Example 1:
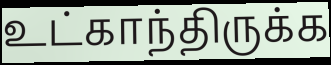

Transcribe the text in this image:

உட்காந்திருக்க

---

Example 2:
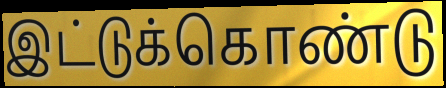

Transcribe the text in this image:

இட்டுக்கொண்டு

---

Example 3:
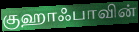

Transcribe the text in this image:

குஹாஃபாவின்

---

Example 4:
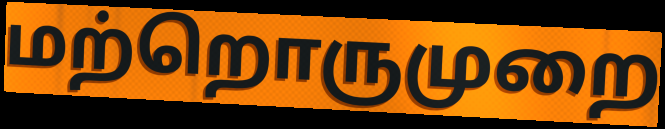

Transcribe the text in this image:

மற்றொருமுறை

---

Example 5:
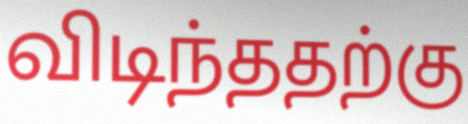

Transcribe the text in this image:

விடிந்ததற்கு